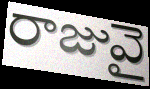
రాజువై